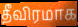
தீவிரமாக